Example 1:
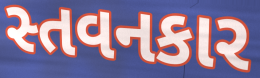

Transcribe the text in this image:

સ્તવનકાર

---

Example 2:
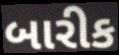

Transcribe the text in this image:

બારીક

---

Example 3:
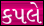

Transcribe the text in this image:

કપલે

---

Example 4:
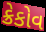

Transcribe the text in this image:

ક્રેકોવ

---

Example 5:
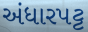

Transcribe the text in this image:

અંધારપટ્ટ